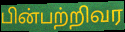
பின்பற்றிவர